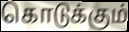
கொடுக்கும்